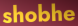
shobhe